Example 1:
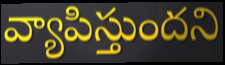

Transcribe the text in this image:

వ్యాపిస్తుందని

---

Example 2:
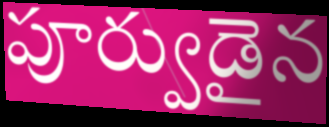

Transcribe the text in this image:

పూర్వుడైన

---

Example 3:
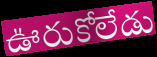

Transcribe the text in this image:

ఊరుకోలేడు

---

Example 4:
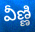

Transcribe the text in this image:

వీణ్ణి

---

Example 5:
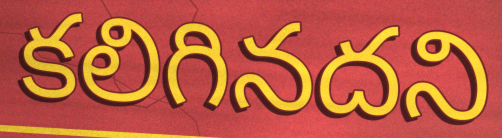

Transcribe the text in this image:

కలిగినదని